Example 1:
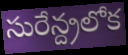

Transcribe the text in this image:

సురేన్ద్రలోక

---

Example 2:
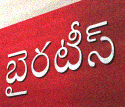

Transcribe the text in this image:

బైరటీస్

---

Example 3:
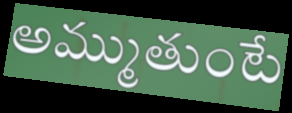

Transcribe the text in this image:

అమ్ముతుంటే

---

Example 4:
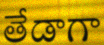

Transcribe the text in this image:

తేడాగా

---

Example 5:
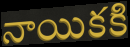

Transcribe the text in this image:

నాయికకి